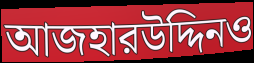
আজহারউদ্দিনও